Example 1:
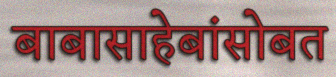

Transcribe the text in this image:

बाबासाहेबांसोबत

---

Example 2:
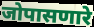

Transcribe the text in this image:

जोपासणारे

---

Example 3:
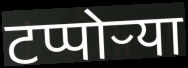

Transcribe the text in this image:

टप्पोऱ्या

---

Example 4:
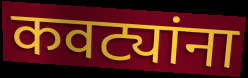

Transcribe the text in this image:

कवट्यांना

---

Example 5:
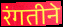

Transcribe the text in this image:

रंगतीने